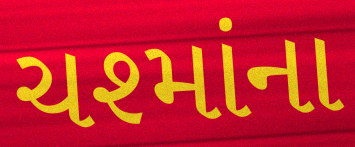
ચશ્માંના